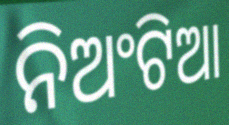
ନିଅଂଟିଆ